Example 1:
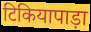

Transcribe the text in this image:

टिकियापाड़ा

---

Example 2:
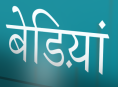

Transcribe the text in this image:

बेडिय़ां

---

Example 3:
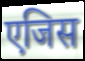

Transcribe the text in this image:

एजिस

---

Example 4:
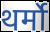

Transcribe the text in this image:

थर्मो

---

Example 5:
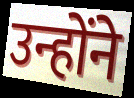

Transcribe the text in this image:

उन्‍होंने